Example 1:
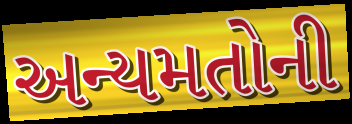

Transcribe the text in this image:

અન્યમતોની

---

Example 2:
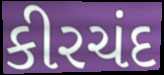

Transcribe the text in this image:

કીરચંદ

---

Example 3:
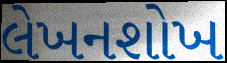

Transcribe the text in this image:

લેખનશોખ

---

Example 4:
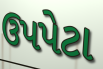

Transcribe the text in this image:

ઉપપેટા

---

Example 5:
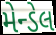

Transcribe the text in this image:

મેન્ડેલ